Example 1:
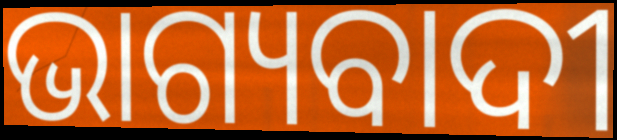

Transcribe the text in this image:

ଭାଗ୍ୟବାଦୀ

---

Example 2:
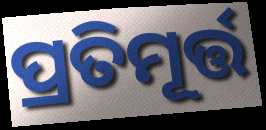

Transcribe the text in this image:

ପ୍ରତିମୂର୍ତ୍ତ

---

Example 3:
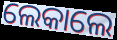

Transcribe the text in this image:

ଲେକାଲେ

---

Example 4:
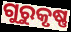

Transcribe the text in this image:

ଗୁରୁକୃଷ୍ଣ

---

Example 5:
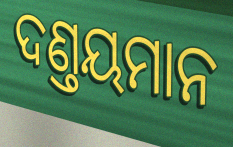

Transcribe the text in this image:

ଦଣ୍ତୟମାନ